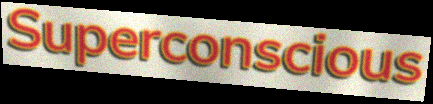
Superconscious